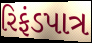
રિફંડપાત્ર